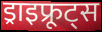
ड्राइफ्रूट्स